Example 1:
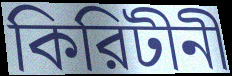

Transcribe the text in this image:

কিরিটীনী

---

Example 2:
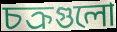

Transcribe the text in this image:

চক্রগুলো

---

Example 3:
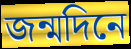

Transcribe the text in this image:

জন্মদিনে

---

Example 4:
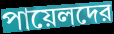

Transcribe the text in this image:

পায়েলদের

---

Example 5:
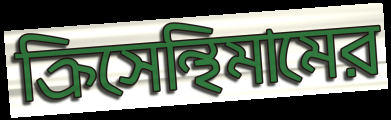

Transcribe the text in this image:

ক্রিসেন্থিমামের